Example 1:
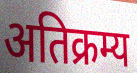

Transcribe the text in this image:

अतिक्रम्य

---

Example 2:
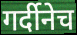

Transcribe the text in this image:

गर्दीनेच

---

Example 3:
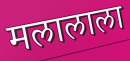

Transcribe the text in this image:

मलालाला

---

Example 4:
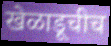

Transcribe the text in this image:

खेळाडूचीच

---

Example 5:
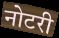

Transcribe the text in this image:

नोटरी